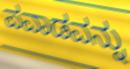
ಪವಾಡವನ್ನು